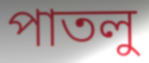
পাতলু